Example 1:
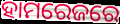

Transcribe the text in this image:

ହାମରେଜରେ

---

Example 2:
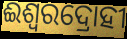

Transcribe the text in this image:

ଈଶ୍ଵରଦ୍ରୋହୀ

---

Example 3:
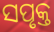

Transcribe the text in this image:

ସପୃକ୍ତ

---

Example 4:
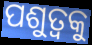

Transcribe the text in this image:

ପଶୁତ୍ୱକୁ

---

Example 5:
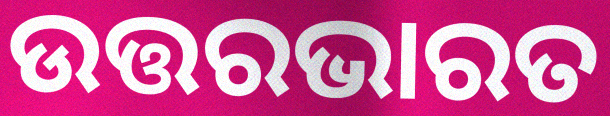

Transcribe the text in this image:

ଉତ୍ତରଭାରତ